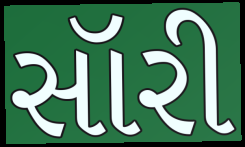
સૉરી